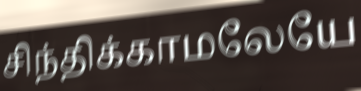
சிந்திக்காமலேயே